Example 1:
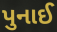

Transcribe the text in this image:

પુનાઈ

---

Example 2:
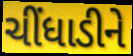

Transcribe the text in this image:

ચીંધાડીને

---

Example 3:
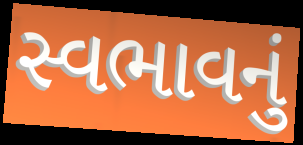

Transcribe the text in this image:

સ્વભાવનું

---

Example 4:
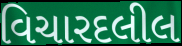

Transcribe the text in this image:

વિચારદલીલ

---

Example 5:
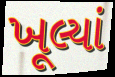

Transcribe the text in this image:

ખૂલ્યાં